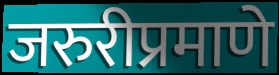
जरुरीप्रमाणे